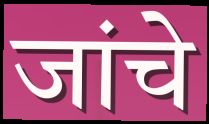
जांचे